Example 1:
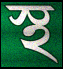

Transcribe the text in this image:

স্থ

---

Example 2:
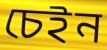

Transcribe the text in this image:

চেইন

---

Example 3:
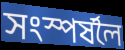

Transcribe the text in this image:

সংস্পৰ্ষলৈ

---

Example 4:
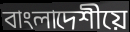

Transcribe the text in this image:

বাংলাদেশীয়ে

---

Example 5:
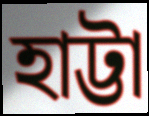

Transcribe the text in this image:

হাট্টা